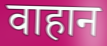
वाहान